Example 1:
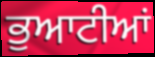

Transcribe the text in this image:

ਭੁਆਟੀਆਂ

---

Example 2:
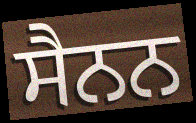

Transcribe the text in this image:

ਸੈਨਨ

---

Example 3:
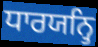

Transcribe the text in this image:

ਧਾਰਯਨ੍ਤਿ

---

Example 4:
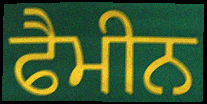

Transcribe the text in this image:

ਫੈਮੀਨ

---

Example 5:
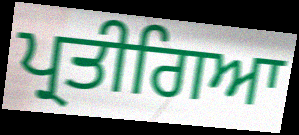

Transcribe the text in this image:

ਪ੍ਰਤੀਗਿਆ